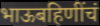
भाऊबहिणींचं